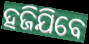
ହଜିଯିବେ